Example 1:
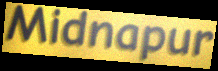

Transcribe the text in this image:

Midnapur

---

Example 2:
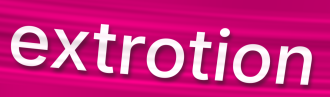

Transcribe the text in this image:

extrotion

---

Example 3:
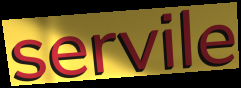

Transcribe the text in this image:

servile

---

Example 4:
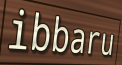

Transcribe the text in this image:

ibbaru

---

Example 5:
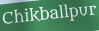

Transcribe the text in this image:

Chikballpur